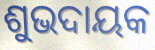
ଶୁଭଦାୟକ